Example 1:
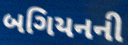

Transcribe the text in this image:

બગિયનની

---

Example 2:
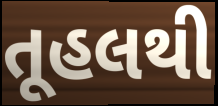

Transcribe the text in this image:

તૂહલથી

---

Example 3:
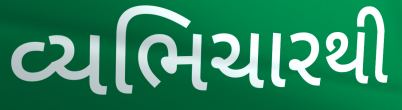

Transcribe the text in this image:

વ્યભિચારથી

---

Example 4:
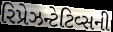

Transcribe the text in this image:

રિપ્રેઝન્ટેટિવ્સની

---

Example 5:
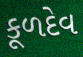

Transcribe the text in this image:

કૂળદેવ